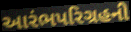
આરંભપરિગ્રહની